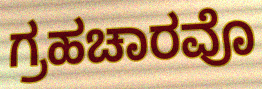
ಗ್ರಹಚಾರವೊ